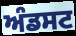
ਅੰਡਸਟ